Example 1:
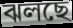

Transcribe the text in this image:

ঝলছে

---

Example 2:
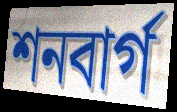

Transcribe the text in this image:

শনবার্গ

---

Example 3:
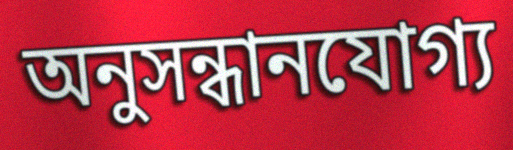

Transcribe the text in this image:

অনুসন্ধানযোগ্য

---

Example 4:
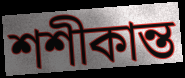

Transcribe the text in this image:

শশীকান্ত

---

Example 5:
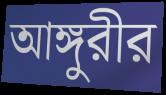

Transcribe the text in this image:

আঙ্গুরীর